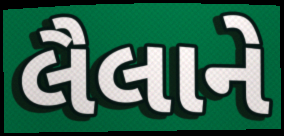
લૈલાને